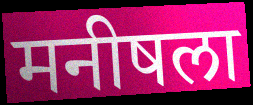
मनीषला